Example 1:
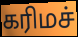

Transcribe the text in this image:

கரிமச்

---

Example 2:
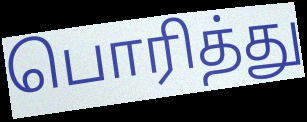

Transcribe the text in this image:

பொரித்து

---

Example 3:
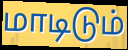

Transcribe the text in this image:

மாடிடும்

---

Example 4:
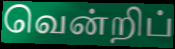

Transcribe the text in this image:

வென்றிப்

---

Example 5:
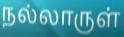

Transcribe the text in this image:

நல்லாருள்